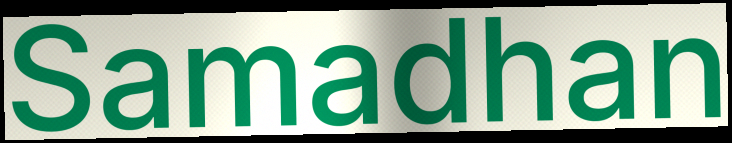
Samadhan